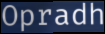
Opradh